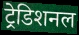
ट्रेडिशनल